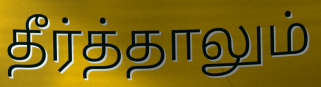
தீர்த்தாலும்